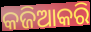
କଜିଆକରି